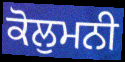
ਕੋਲੁਮਨੀ